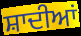
ਸ਼ਾਦੀਆਂ